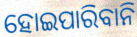
ହୋଇପାରିବାନି